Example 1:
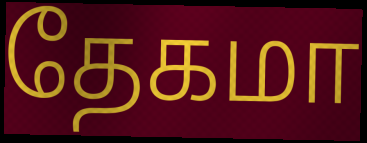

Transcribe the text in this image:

தேகமா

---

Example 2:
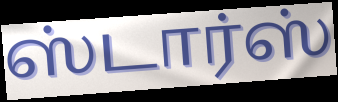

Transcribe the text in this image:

ஸ்டார்ஸ்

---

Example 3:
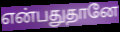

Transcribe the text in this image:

என்பதுதானே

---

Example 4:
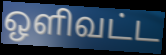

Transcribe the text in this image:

ஒளிவட்ட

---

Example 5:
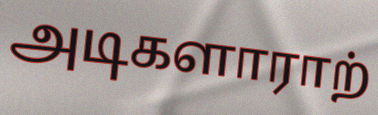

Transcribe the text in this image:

அடிகளாராற்